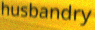
husbandry